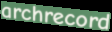
archrecord